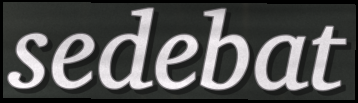
sedebat